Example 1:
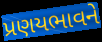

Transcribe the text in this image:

પ્રણયભાવને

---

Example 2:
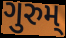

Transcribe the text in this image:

ગુરુમ્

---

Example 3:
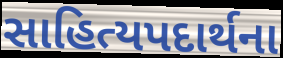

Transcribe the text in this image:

સાહિત્યપદાર્થના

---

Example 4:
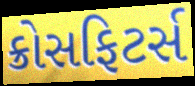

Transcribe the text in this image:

ક્રોસફિટર્સ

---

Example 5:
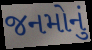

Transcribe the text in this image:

જનમોનું